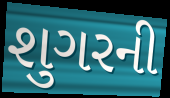
શુગરની